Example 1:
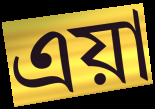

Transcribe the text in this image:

এয়া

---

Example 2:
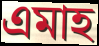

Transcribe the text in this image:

এমাহ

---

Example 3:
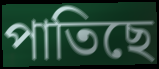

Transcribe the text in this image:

পাতিছে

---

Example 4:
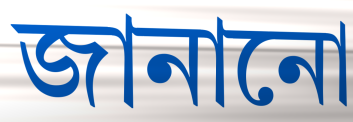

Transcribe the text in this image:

জানানো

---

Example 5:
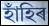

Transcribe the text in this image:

হাঁহিৰ